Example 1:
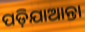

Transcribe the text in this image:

ପଡ଼ିଯାଆନ୍ତା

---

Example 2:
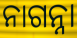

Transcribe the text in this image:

ନାଗନ୍ନା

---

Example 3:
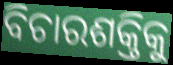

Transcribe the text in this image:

ବିଚାରଶକ୍ତିକୁ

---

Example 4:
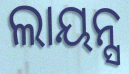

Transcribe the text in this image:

ଲାୟନ୍ସ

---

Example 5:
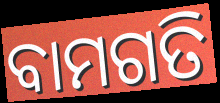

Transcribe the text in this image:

ବାମଗତି